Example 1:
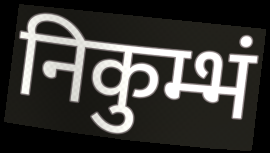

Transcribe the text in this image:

निकुम्भं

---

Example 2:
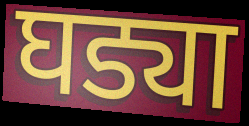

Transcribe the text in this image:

घड्या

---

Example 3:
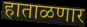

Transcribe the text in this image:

हाताळणार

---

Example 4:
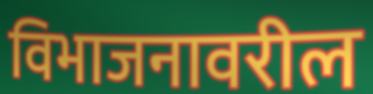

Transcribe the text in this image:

विभाजनावरील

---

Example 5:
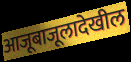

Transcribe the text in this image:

आजूबाजूलादेखील